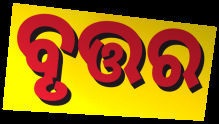
ବୃତ୍ତର